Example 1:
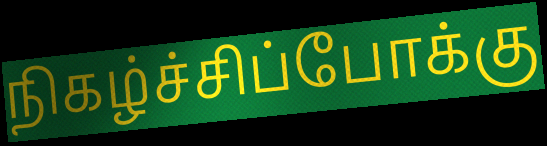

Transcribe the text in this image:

நிகழ்ச்சிப்போக்கு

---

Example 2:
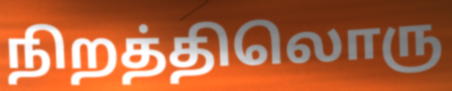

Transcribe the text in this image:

நிறத்திலொரு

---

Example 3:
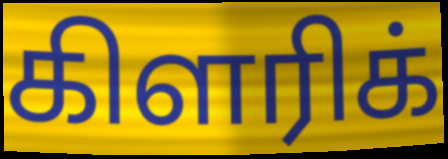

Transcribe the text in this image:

கிளரிக்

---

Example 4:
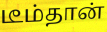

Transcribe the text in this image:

டீம்தான்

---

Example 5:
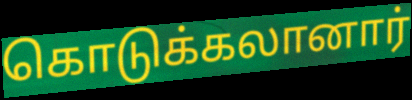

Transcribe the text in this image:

கொடுக்கலானார்